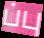
ப்பு